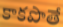
కాకపొతే